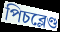
পিচব্লেণ্ড